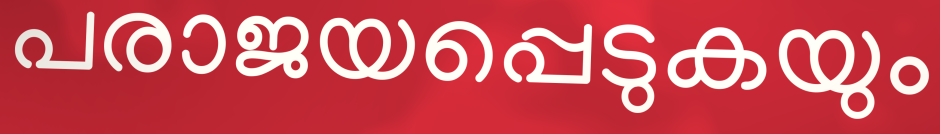
പരാജയപ്പെടുകയും